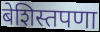
बेशिस्तपणा